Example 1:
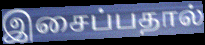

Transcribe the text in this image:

இசைப்பதால்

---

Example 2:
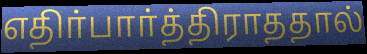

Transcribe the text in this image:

எதிர்பார்த்திராததால்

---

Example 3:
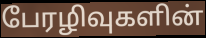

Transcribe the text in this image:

பேரழிவுகளின்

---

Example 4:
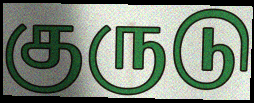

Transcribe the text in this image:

குருடு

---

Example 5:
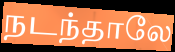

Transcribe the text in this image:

நடந்தாலே